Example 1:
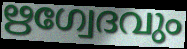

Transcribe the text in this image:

ഋഗ്വേദവും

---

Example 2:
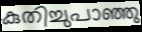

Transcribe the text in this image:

കുതിച്ചുപാഞ്ഞു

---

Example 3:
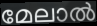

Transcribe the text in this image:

മേലാൽ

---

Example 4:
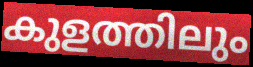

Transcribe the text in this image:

കുളത്തിലും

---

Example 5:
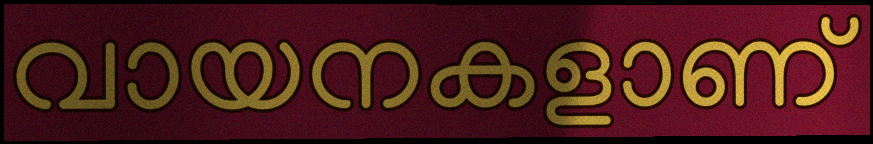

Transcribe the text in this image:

വായനകളാണ്